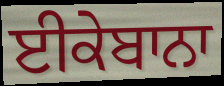
ਈਕੇਬਾਨਾ